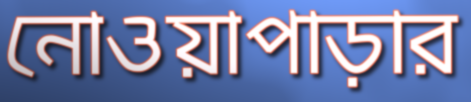
নোওয়াপাড়ার